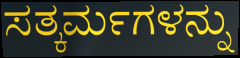
ಸತ್ಕರ್ಮಗಳನ್ನು